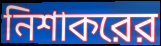
নিশাকরের